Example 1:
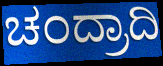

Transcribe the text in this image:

ಚಂದ್ರಾದಿ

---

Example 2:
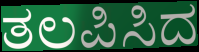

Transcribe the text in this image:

ತಲಪಿಸಿದ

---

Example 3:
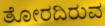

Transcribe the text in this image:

ತೋರದಿರುವ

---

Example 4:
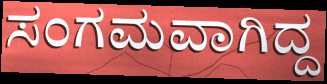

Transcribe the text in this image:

ಸಂಗಮವಾಗಿದ್ದ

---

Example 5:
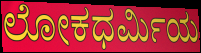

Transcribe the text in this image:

ಲೋಕಧರ್ಮಿಯ